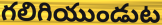
గలిగియుండుట